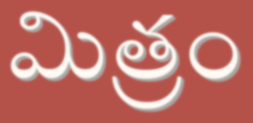
మిత్రం